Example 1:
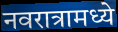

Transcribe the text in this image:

नवरात्रामध्ये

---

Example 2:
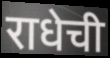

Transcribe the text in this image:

राधेची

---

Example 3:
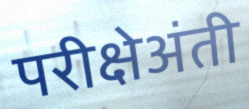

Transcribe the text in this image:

परीक्षेअंती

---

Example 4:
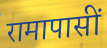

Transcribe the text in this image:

रामापासीं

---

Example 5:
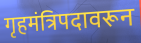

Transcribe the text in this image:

गृहमंत्रिपदावरून